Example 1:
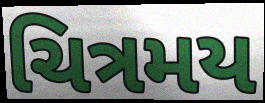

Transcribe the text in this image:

ચિત્રમય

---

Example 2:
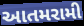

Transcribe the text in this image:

આતમરામી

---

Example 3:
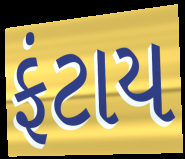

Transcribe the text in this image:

ફંટાય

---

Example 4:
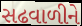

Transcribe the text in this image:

સઢવાળીને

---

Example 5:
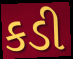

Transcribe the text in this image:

કડી